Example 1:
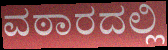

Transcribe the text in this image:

ವಠಾರದಲ್ಲಿ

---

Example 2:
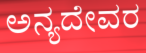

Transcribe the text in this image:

ಅನ್ಯದೇವರ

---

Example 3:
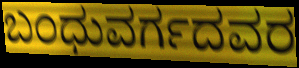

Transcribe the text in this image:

ಬಂಧುವರ್ಗದವರ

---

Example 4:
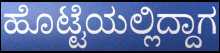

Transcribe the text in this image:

ಹೊಟ್ಟೆಯಲ್ಲಿದ್ದಾಗ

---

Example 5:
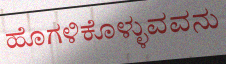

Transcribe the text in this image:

ಹೊಗಳಿಕೊಳ್ಳುವವನು